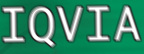
IQVIA